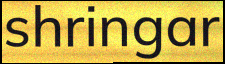
shringar